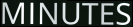
MINUTES